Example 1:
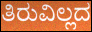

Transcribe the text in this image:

ತಿರುವಿಲ್ಲದ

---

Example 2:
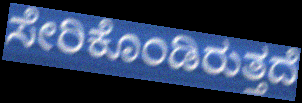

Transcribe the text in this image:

ಸೇರಿಕೊಂಡಿರುತ್ತದೆ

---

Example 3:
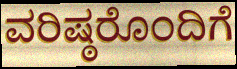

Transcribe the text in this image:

ವರಿಷ್ಠರೊಂದಿಗೆ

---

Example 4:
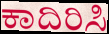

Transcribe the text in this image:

ಕಾದಿರಿಸಿ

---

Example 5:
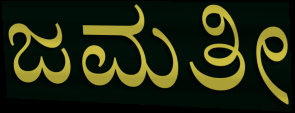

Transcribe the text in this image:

ಜಮತೀ